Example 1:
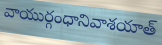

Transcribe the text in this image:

వాయుర్గంధానివాశయాత్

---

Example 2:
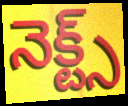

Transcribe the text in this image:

నెక్ట్స్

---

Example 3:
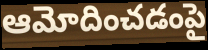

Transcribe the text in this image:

ఆమోదించడంపై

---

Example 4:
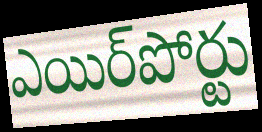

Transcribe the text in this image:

ఎయిర్‌పోర్టు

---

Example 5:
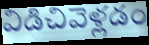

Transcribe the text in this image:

విడిచివెళ్లడం